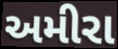
અમીરા